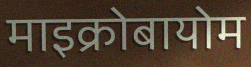
माइक्रोबायोम